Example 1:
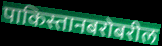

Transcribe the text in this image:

पाकिस्तानबरोबरील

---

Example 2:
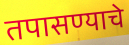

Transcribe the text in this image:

तपासण्याचे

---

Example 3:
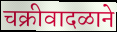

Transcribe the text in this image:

चक्रीवादळाने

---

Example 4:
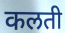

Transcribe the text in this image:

कलती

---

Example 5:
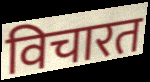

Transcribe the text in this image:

विचारत